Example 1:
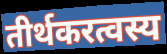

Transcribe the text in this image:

तीर्थकरत्वस्य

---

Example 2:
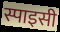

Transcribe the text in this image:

स्पाइसी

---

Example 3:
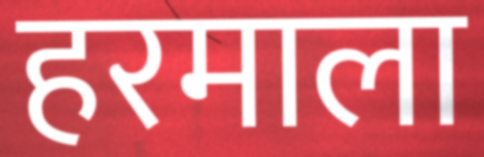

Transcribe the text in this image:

हरमाला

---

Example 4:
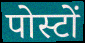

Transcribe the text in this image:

पोस्टों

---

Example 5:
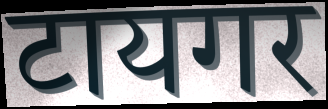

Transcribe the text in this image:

टायगर